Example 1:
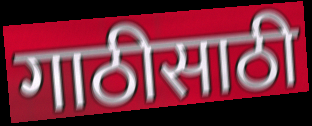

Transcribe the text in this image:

गाठीसाठी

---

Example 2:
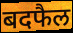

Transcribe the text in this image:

बदफैल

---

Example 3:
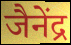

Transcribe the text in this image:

जैनेंद्र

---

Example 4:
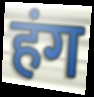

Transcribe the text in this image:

हंग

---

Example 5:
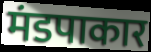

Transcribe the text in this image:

मंडपाकार